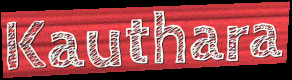
Kauthara